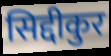
सिद्दीकुर